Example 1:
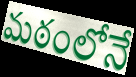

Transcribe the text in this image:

మఠంలోనే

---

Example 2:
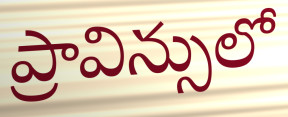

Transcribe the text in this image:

ప్రావిన్సులో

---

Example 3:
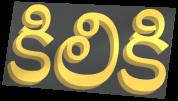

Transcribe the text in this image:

కిలికి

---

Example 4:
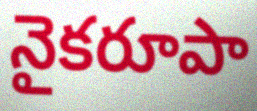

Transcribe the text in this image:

నైకరూపా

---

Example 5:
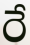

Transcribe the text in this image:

రే